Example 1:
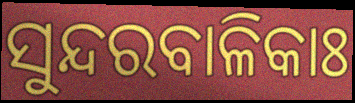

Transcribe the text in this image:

ସୁନ୍ଦରବାଳିକାଃ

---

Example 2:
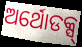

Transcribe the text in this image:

ଅର୍ଥୋଡକ୍ସ୍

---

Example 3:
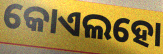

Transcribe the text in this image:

କୋଏଲହୋ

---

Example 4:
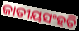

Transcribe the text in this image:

ଜାତୀୟସଂହତି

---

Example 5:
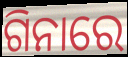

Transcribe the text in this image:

ଗିନାରେ